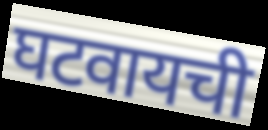
घटवायची